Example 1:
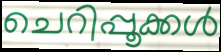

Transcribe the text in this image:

ചെറിപ്പൂക്കൾ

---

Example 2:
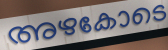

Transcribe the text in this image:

അഴകോടെ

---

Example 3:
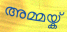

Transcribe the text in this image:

അമ്മയ്ക്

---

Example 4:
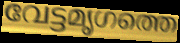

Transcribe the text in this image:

വേട്ടമൃഗത്തെ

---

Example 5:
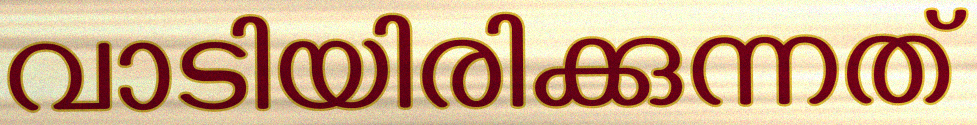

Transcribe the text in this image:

വാടിയിരിക്കുന്നത്